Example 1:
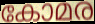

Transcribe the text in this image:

കോമര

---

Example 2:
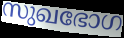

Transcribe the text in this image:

സുഖഭോഗ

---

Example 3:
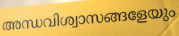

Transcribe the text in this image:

അന്ധവിശ്വാസങ്ങളേയും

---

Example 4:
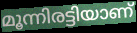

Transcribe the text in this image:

മൂന്നിരട്ടിയാണ്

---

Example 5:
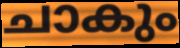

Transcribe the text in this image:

ചാകും